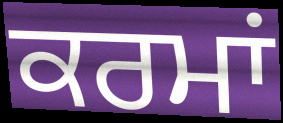
ਕਰਮਾਂ